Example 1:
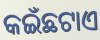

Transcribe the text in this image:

କଇଁଛଟାଏ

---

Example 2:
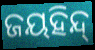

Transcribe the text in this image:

ଜୟହିନ୍ଦ୍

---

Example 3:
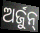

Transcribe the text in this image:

ଅର୍ଜୁନ୍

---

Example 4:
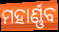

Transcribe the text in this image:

ମହାର୍ଣ୍ଣବ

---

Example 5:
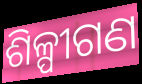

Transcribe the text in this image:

ଶିଳ୍ପୀଗଣ